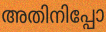
അതിനിപ്പോ